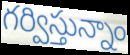
గర్విస్తున్నాం